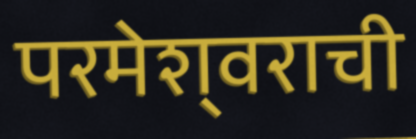
परमेश्वराची